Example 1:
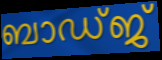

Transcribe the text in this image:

ബാഡ്ജ്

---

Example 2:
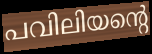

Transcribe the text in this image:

പവിലിയന്റെ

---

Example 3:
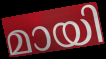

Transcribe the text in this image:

മായി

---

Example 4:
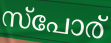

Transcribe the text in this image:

സ്പോര്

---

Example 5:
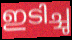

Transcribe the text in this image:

ഇടിച്ചു